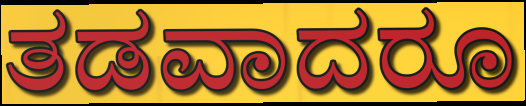
ತಡವಾದರೂ